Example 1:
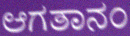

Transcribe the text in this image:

ಆಗತಾನಂ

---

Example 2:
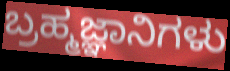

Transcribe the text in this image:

ಬ್ರಹ್ಮಜ್ಞಾನಿಗಳು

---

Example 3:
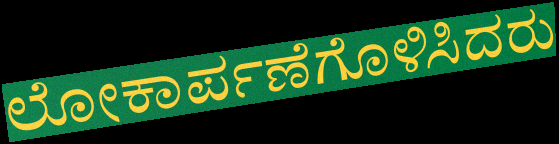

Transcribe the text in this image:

ಲೋಕಾರ್ಪಣೆಗೊಳಿಸಿದರು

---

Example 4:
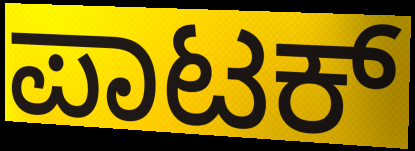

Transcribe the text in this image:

ಪಾಟಕ್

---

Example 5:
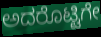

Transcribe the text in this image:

ಅದರೊಟ್ಟಿಗೇ